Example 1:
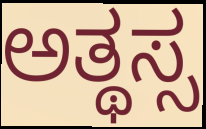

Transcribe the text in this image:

ಅತ್ಥಸ್ಸ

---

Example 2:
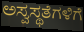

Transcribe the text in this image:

ಅಸ್ವಸ್ಥತೆಗಳಿಗೆ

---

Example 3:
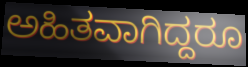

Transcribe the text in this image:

ಅಹಿತವಾಗಿದ್ದರೂ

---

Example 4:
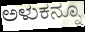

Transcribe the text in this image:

ಅಳುಕನ್ನೂ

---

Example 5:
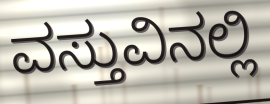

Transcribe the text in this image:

ವಸ್ತುವಿನಲ್ಲಿ